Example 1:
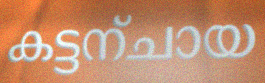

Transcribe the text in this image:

കട്ടന്ചായ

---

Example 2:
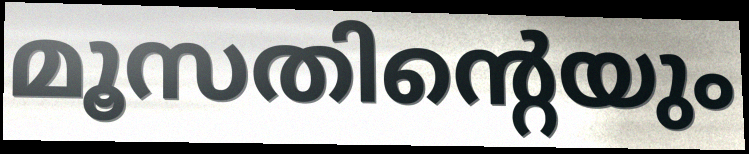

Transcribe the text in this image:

മൂസതിന്റെയും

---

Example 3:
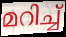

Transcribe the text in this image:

മറിച്ച്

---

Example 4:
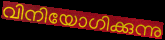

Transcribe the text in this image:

വിനിയോഗിക്കുന്നു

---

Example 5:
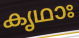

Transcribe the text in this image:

കൃഥാഃ